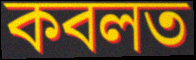
কবলত